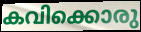
കവിക്കൊരു